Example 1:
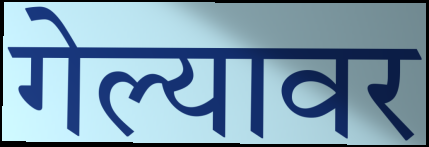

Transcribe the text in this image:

गेल्यावर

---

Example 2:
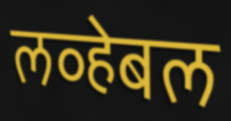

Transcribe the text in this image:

लव्हेबल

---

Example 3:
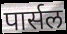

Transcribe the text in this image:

पार्सल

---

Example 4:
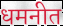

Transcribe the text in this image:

धमनीत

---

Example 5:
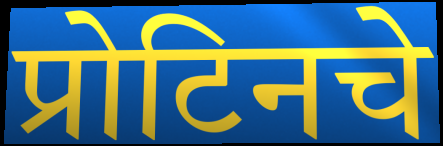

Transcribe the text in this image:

प्रोटिनचे